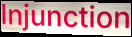
Injunction